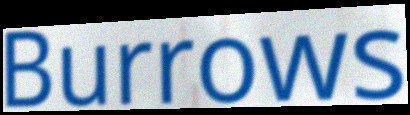
Burrows